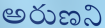
అరుణని